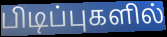
பிடிப்புகளில்